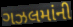
ગઝલમાંની